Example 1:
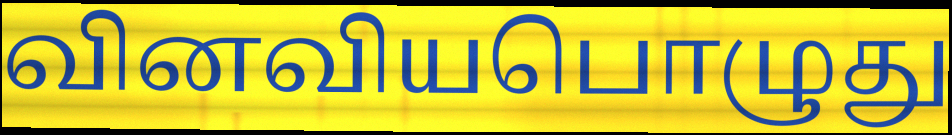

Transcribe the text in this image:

வினவியபொழுது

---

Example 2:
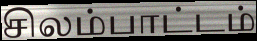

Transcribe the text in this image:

சிலம்பாட்டம்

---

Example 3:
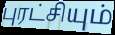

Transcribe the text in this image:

புரட்சியும்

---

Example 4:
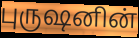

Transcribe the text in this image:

புருஷனின்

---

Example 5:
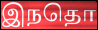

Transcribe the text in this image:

இநதொ